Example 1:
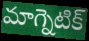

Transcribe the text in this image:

మాగ్నెటిక్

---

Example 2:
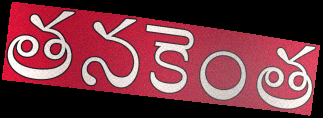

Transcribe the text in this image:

తనకెంత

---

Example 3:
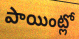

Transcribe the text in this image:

పాయింట్లో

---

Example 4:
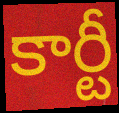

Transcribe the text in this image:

కార్టీ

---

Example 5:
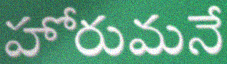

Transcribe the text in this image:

హోరుమనే